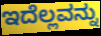
ಇದೆಲ್ಲವನ್ನು